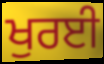
ਖੁਰਈ